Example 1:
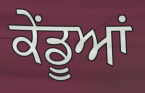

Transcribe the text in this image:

ਕੇਂਡੂਆਂ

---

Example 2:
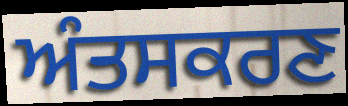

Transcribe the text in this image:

ਅੰਤਸਕਰਣ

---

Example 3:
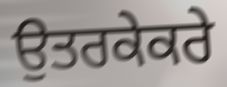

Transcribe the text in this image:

ਉਤਰਕੇਕਰੇ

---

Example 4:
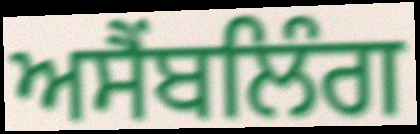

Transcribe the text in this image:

ਅਸੈਂਬਲਿੰਗ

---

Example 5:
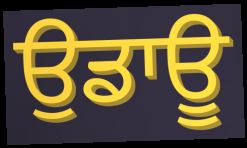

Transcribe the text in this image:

ਉਡਾਊ